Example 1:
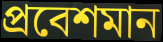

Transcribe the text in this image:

প্রবেশমান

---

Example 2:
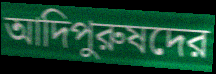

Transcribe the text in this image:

আদিপুরুষদের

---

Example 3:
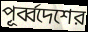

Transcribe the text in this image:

পূর্ব্বদেশের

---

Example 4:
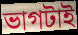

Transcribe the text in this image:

ভাগটাই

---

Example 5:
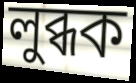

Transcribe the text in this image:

লুব্ধক